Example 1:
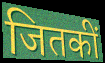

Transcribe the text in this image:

जितकीं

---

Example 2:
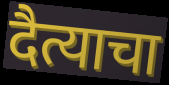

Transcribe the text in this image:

दैत्याचा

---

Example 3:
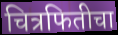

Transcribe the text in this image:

चित्रफितीचा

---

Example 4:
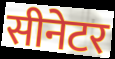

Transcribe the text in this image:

सीनेटर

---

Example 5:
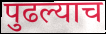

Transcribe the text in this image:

पुढल्याच